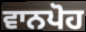
ਵਾਨਪੋਹ